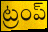
ట్రంప్